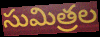
సుమిత్రల